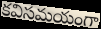
కవిసమయంగా